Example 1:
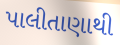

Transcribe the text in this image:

પાલીતાણાથી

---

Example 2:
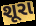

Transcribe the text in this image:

શૂરા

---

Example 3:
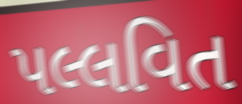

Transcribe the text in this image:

પલ્લવિત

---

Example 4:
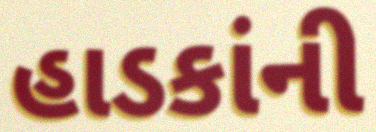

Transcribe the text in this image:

હાડકાંની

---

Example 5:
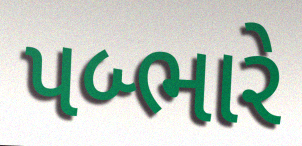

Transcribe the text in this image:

પબ્ભારે